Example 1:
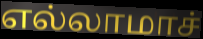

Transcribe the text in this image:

எல்லாமாச்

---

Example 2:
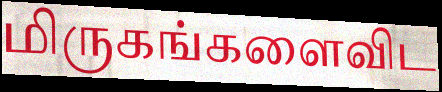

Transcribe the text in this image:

மிருகங்களைவிட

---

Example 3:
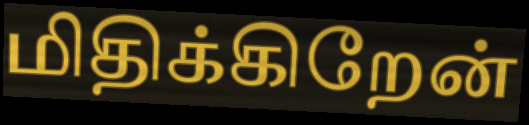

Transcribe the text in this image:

மிதிக்கிறேன்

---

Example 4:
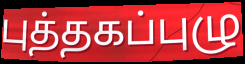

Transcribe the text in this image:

புத்தகப்புழு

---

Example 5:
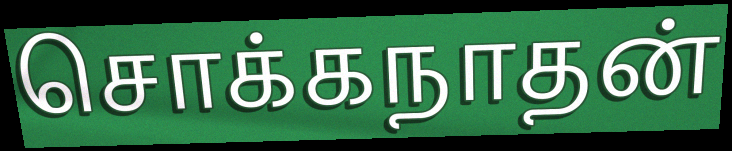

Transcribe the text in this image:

சொக்கநாதன்